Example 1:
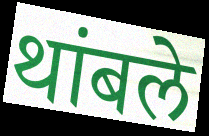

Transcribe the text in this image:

थांबले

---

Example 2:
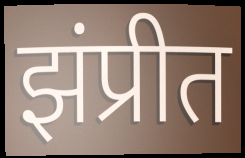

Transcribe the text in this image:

झंप्रीत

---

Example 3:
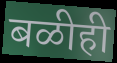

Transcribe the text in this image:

बळीही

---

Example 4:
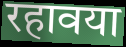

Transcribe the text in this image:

रहावया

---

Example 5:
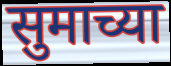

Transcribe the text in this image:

सुमाच्या